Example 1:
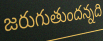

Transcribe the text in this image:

జరుగుతుందన్నది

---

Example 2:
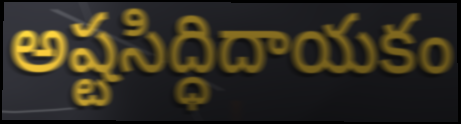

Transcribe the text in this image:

అష్టసిద్ధిదాయకం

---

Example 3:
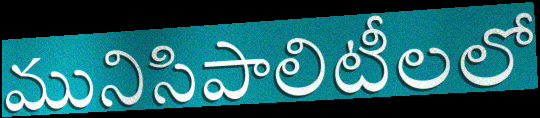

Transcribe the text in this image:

మునిసిపాలిటీలలో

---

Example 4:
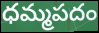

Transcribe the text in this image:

ధమ్మపదం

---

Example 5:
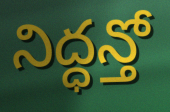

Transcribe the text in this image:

నిద్ధన్తో